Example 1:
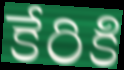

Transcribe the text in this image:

కేరికి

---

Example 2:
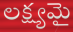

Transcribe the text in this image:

లక్ష్యమై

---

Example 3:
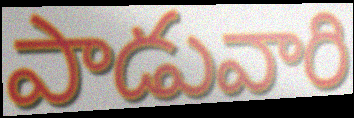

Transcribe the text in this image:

పాడువారి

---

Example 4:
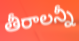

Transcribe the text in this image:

తీరాలన్నీ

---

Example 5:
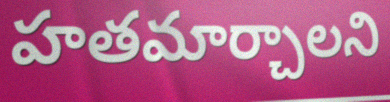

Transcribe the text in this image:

హతమార్చాలని